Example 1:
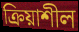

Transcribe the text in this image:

ক্রিয়াশীল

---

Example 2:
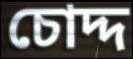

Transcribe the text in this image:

চোদ্দ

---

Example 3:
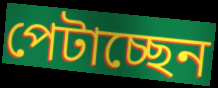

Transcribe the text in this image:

পেটাচ্ছেন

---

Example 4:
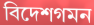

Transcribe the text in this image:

বিদেশগমন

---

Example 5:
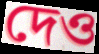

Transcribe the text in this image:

দেও